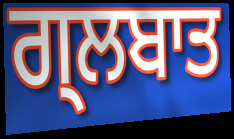
ਗ੍ਲਬਾਤ